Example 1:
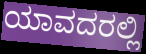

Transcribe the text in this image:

ಯಾವದರಲ್ಲಿ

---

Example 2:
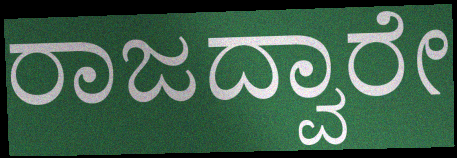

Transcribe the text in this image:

ರಾಜದ್ವಾರೇ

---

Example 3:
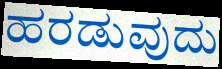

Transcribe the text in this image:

ಹರಡುವುದು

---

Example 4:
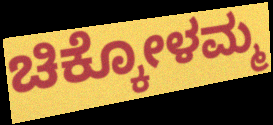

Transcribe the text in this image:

ಚಿಕ್ಕೋಳಮ್ಮ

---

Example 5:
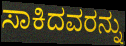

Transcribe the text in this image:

ಸಾಕಿದವರನ್ನು